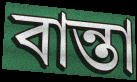
বান্তা